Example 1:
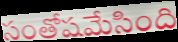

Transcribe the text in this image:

సంతోషమేసింది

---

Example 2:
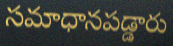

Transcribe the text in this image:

సమాధానపడ్డారు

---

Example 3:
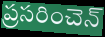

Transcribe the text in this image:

ప్రసరించెన్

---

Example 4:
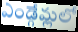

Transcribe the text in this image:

ఎండ్గేమ్లలో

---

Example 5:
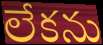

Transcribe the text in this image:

లేకను